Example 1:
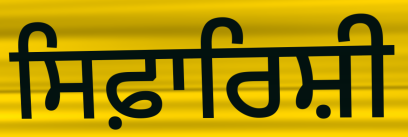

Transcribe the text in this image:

ਸਿਫ਼ਾਰਿਸ਼ੀ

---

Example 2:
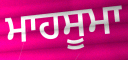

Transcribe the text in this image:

ਮਾਹਸੂਮਾ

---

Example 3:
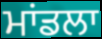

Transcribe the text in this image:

ਮਾਂਡਲਾ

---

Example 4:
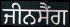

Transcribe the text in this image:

ਜੀਨਸੈਂਗ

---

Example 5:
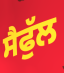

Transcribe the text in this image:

ਸੈਫੁੱਲ